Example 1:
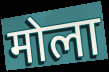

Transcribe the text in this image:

मोला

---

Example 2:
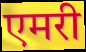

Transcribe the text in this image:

एमरी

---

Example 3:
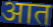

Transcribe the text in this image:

आत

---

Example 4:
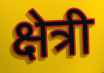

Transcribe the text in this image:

क्षेत्री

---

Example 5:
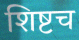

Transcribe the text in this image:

शिष्टच